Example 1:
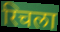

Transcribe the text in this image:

रिचला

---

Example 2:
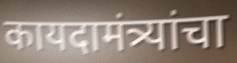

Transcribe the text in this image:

कायदामंत्र्यांचा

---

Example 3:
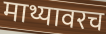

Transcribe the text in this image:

माथ्यावरच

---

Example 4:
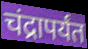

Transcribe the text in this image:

चंद्रापर्यंत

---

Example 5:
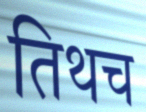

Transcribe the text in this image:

तिथच